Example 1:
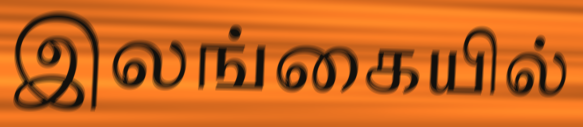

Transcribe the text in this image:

இலங்கையில்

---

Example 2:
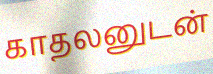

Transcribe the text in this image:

காதலனுடன்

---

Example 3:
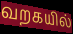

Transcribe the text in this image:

வறகயில்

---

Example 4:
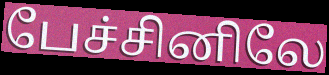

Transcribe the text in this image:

பேச்சினிலே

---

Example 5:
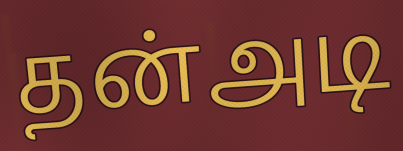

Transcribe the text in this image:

தன்அடி